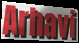
Arhavi